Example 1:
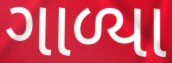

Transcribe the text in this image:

ગાળ્યા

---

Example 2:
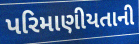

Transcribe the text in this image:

પરિમાણીયતાની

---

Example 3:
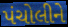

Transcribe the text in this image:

પંચોલીને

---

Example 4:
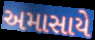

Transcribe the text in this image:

અમાસાયે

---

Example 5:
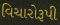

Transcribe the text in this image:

વિચારોરૂપી